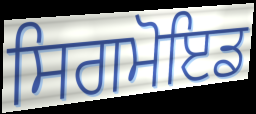
ਸਿਗਮੋਇਡ